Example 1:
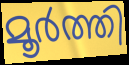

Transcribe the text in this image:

മൂർത്തി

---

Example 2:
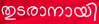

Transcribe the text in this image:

തുടരാനായി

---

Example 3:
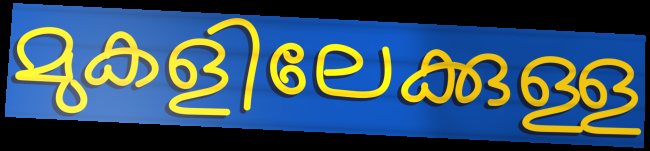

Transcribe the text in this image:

മുകളിലേക്കുള്ള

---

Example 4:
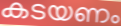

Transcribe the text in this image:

കടയണം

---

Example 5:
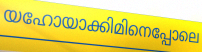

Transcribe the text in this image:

യഹോയാക്കിമിനെപ്പോലെ